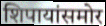
शिपायांसमोर